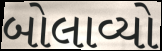
બોલાવ્યો